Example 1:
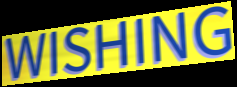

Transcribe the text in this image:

WISHING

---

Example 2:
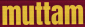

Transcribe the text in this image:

muttam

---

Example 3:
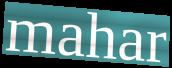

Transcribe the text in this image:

mahar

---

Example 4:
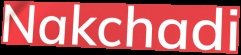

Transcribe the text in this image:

Nakchadi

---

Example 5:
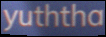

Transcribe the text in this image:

yuththa